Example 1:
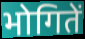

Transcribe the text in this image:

भोगितें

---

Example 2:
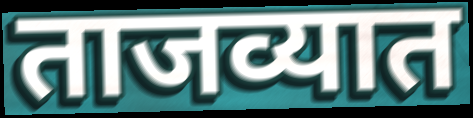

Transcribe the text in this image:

ताजव्यात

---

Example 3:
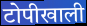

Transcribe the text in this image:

टोपीखाली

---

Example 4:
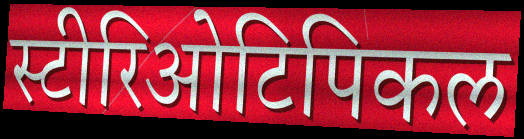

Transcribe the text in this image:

स्टीरिओटिपिकल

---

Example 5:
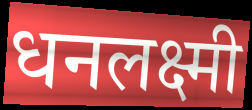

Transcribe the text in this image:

धनलक्ष्मी